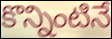
కొన్నింటినే